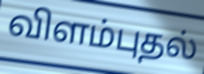
விளம்புதல்